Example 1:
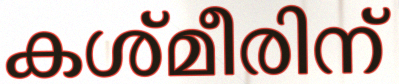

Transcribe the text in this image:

കശ്മീരിന്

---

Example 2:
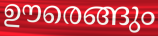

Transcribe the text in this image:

ഊരെങ്ങും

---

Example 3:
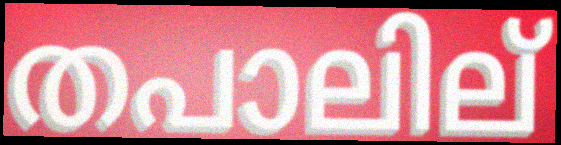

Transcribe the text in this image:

തപാലില്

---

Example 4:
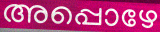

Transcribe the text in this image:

അപ്പൊഴേ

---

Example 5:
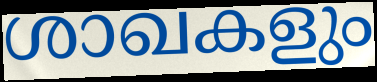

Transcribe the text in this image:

ശാഖകളും